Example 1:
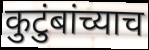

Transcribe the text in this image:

कुटुंबांच्याच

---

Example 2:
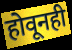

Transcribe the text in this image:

होवूनही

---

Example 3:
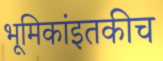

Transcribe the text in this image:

भूमिकांइतकीच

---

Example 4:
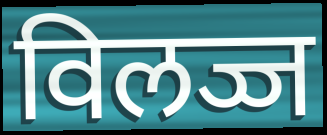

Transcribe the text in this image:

विलज्ज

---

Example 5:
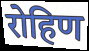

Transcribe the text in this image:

रोहिण